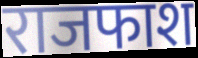
राजफाश